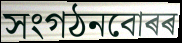
সংগঠনবোৰৰ